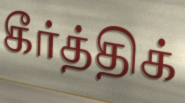
கீர்த்திக்